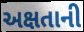
અક્ષતાની